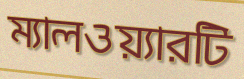
ম্যালওয়্যারটি